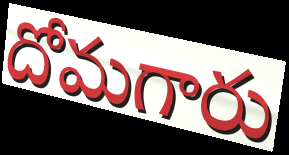
దోమగారు